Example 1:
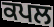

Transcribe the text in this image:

ਕਪਲ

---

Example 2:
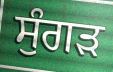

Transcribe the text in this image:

ਸੁੰਗੜ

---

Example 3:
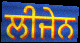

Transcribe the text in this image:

ਲੀਜੇਨ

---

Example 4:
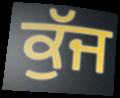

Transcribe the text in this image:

ਕੁੱਜ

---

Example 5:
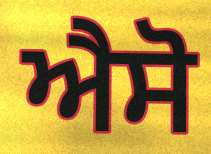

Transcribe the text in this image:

ਐਸੋ